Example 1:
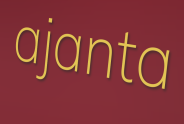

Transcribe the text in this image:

ajanta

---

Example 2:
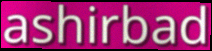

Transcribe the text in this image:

ashirbad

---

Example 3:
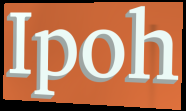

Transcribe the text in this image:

Ipoh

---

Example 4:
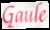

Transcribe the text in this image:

Gaule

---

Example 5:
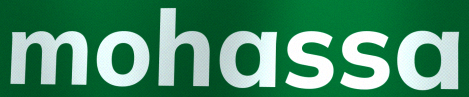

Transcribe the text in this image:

mohassa